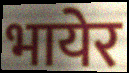
भायेर